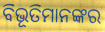
ବିଭୂତିମାନଙ୍କର